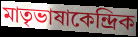
মাতৃভাষাকেন্দ্রিক